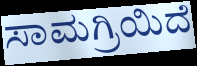
ಸಾಮಗ್ರಿಯಿದೆ